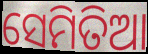
ସେମିତିଆ